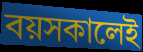
বয়সকালেই